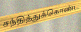
சந்தித்துக்கொண்ட